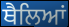
ਥੈਲਿਆਂ